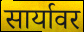
सार्यावर